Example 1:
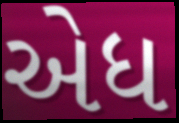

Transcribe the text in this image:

એધ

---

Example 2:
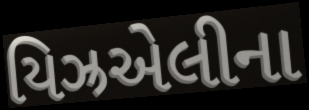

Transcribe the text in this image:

યિઝ્રએલીના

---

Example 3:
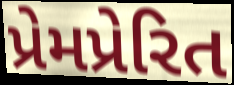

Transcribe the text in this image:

પ્રેમપ્રેરિત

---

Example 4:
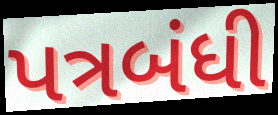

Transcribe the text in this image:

પત્રબંધી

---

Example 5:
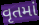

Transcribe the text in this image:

વૃતમાં